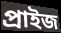
প্ৰাইজ